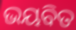
ଭୟବିତ